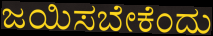
ಜಯಿಸಬೇಕೆಂದು